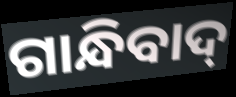
ଗାନ୍ଧିବାଦ୍